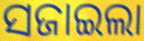
ସଜାଇଲା